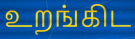
உறங்கிட